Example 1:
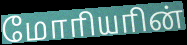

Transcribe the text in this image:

மோரியரின்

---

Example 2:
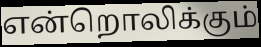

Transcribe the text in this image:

என்றொலிக்கும்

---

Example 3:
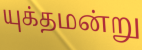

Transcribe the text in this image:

யுக்தமன்று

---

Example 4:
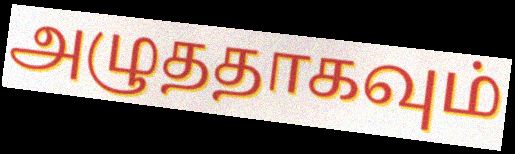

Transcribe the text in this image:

அழுததாகவும்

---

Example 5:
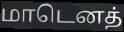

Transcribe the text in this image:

மாடெனத்